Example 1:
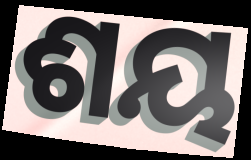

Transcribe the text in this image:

ଶୟ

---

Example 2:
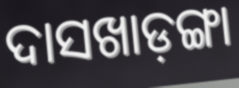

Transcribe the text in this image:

ଦାସଖାଡ଼ଙ୍ଗା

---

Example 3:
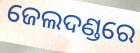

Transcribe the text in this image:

ଜେଲଦଣ୍ଡରେ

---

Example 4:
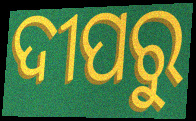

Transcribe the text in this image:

ଦୀପରୁ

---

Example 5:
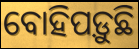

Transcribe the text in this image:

ବୋହିପଡ଼ୁଛି